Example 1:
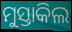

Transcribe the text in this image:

ମୁସ୍ତାକିଲ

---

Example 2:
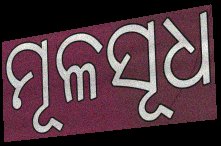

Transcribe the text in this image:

ମୂଳସୂଧ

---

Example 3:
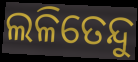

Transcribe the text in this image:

ଲଳିତେନ୍ଦୁ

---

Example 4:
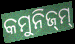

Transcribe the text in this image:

କମୁନିଜ୍‌ମ୍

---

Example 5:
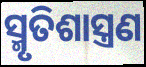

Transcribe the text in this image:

ସ୍ମୃତିଶାସ୍ତ୍ରଣ